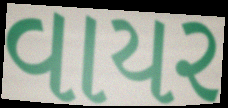
વાયર